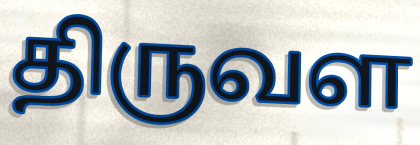
திருவள